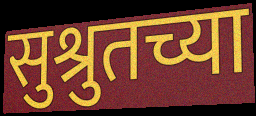
सुश्रुतच्या